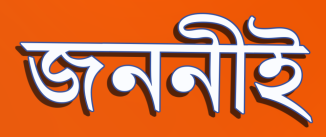
জননীই